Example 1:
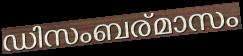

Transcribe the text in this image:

ഡിസംബര്മാസം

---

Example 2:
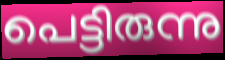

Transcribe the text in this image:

പെട്ടിരുന്നു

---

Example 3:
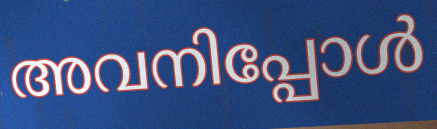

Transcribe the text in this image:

അവനിപ്പോൾ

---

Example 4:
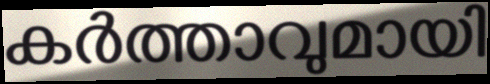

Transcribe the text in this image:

കർത്താവുമായി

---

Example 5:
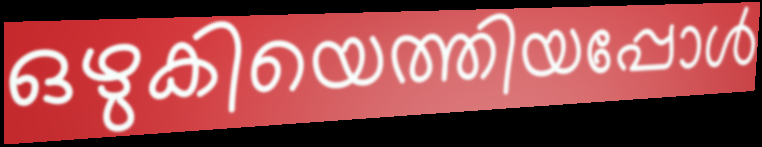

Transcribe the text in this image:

ഒഴുകിയെത്തിയപ്പോൾ